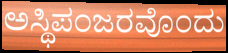
ಅಸ್ಥಿಪಂಜರವೊಂದು